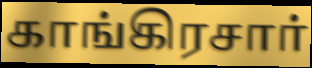
காங்கிரசார்